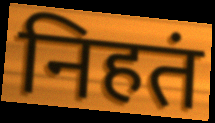
निहतं